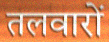
तलवारों